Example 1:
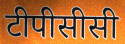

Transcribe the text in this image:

टीपीसीसी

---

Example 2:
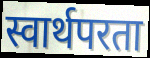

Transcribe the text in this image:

स्वार्थपरता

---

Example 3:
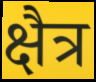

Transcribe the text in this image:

क्षैत्र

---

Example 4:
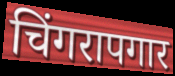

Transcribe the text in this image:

चिंगरापगार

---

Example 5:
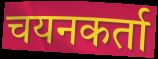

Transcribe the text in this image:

चयनकर्ता